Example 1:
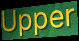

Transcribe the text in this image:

Upper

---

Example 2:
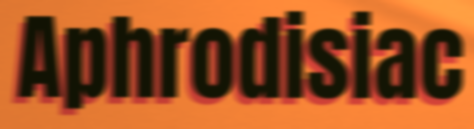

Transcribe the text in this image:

Aphrodisiac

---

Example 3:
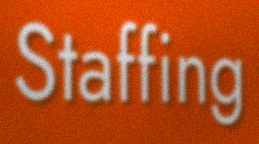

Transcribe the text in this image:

Staffing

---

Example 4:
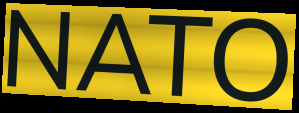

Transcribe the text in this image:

NATO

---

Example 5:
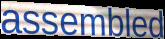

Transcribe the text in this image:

assembled